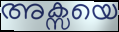
അക്സയെ